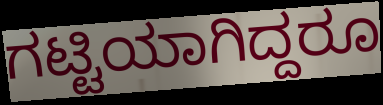
ಗಟ್ಟಿಯಾಗಿದ್ದರೂ